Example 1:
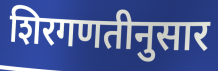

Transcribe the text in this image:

शिरगणतीनुसार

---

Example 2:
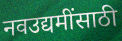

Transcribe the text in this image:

नवउद्यमींसाठी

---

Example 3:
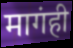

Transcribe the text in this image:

मागंही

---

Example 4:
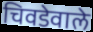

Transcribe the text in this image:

चिवडेवाले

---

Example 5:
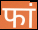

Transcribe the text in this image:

फां